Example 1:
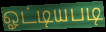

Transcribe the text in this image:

ஓட்டியபடி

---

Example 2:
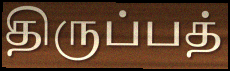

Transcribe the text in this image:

திருப்பத்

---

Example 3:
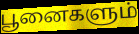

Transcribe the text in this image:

பூனைகளும்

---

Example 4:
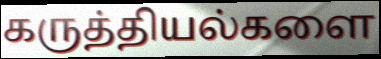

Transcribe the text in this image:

கருத்தியல்களை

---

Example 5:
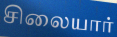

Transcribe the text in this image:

சிலையார்